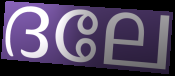
ദലേ